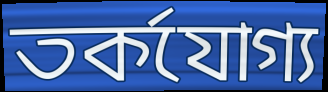
তর্কযোগ্য